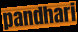
pandhari